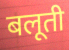
बलूती